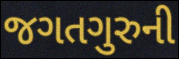
જગતગુરુની